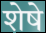
शेषे